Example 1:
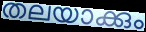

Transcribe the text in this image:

തലയാക്കും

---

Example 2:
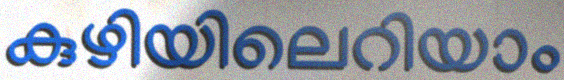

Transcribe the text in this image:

കുഴിയിലെറിയാം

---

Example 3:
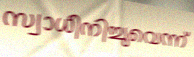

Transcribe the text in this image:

സ്വാധീനിച്ചുവെന്ന്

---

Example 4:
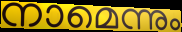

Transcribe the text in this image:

നാമെന്നും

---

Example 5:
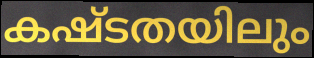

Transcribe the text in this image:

കഷ്ടതയിലും